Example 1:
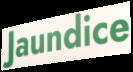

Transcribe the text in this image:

Jaundice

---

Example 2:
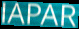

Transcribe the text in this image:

IAPAR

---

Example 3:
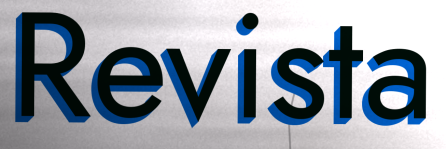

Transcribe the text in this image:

Revista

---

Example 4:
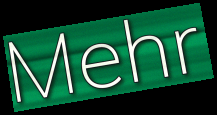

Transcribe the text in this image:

Mehr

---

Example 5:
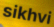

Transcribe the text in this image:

sikhvi